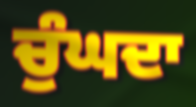
ਚੁੰਘਦਾ